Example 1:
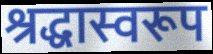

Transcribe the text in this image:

श्रद्धास्वरूप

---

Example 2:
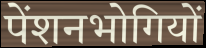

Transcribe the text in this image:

पेंशनभोगियों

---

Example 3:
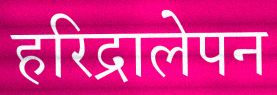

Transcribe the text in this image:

हरिद्रालेपन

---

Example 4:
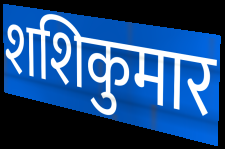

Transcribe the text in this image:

शशिकुमार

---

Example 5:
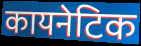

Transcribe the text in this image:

कायनेटिक